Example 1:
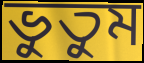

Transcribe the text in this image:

ভুতুম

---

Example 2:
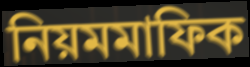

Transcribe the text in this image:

নিয়মমাফিক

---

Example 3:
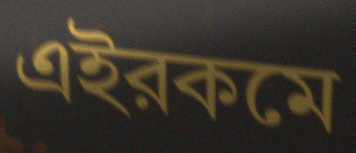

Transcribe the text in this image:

এইরকমে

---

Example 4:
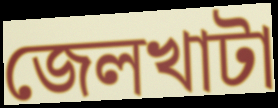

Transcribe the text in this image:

জেলখাটা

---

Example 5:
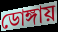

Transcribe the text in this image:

ডোঙ্গায়